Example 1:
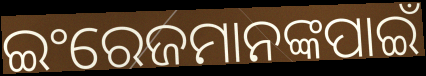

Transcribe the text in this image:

ଇଂରେଜମାନଙ୍କପାଇଁ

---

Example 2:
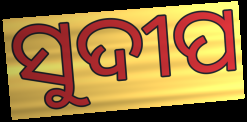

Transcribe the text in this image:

ସୁଦୀପ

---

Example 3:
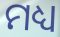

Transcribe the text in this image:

ମଧ୍ୟ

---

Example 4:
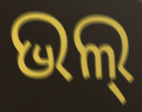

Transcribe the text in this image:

ଭଲ୍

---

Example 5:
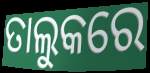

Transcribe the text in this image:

ତାଲୁକରେ